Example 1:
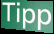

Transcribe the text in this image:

Tipp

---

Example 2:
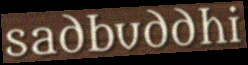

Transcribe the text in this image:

sadbuddhi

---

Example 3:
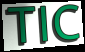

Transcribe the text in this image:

TIC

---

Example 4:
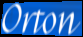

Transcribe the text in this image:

Orton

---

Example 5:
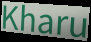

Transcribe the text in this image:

Kharu